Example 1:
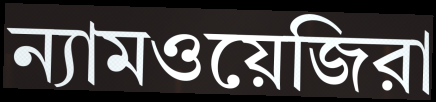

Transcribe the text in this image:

ন্যামওয়েজিরা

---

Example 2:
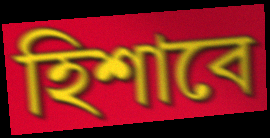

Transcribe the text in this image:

হিশাবে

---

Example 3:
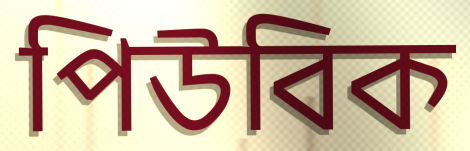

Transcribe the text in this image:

পিউবিক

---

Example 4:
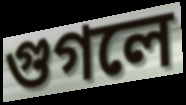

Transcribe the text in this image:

গুগলে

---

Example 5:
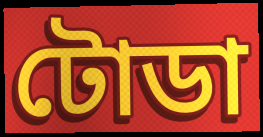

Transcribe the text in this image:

টোডা